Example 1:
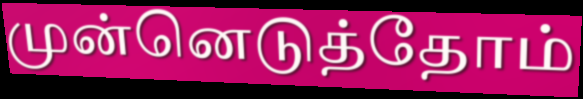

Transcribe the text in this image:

முன்னெடுத்தோம்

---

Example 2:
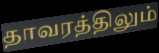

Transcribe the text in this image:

தாவரத்திலும்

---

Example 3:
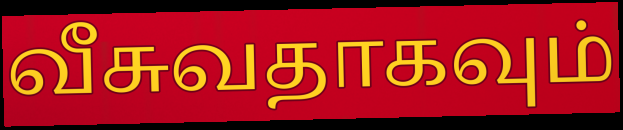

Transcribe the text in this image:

வீசுவதாகவும்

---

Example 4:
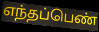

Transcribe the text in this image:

எந்தப்பெண்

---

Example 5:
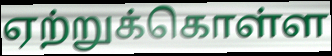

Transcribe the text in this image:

ஏற்றுக்கொள்ள